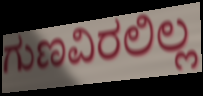
ಗುಣವಿರಲಿಲ್ಲ